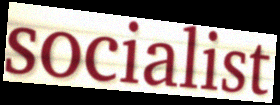
socialist